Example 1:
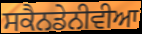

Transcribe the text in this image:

ਸਕੈਨਡੇਨੀਵੀਆ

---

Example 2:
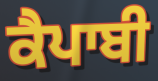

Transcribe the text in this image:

ਕੈਪਾਬੀ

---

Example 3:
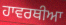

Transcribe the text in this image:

ਹਾਵਰਥੀਆ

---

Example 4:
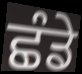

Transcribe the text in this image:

ਛੰਡੇ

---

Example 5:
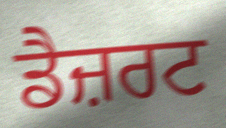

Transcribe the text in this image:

ਡੈਜ਼ਰਟ